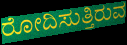
ರೋದಿಸುತ್ತಿರುವ